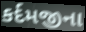
કર્દમજીના